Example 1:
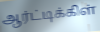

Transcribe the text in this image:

ஆர்ட்டிக்கிள்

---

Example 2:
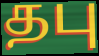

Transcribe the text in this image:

தபு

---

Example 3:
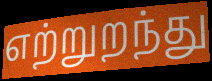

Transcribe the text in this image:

எற்றுறந்து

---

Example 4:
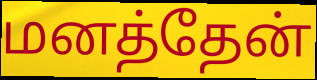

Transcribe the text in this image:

மனத்தேன்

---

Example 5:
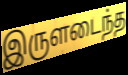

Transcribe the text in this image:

இருளடைந்த